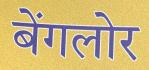
बेंगलोर